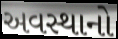
અવસ્થાનો